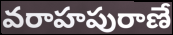
వరాహపురాణే